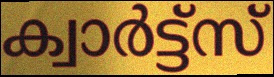
ക്വാർട്ട്സ്